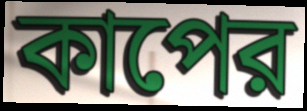
কাপের